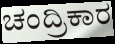
ಚಂದ್ರಿಕಾರ